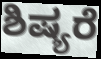
ಶಿಷ್ಯರೆ